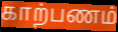
காற்பணம்